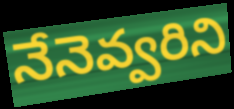
నేనెవ్వరిని